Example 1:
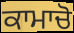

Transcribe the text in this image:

ਕਾਮਾਚੋ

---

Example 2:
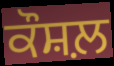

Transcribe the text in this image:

ਕੌਸ਼ਲ਼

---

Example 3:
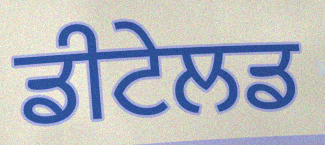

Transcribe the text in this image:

ਡੀਟੇਲਡ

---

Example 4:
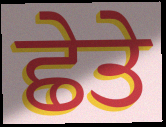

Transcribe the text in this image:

ਛੇਤੇ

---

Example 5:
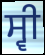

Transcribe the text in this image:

ਸ੍ਵੀ